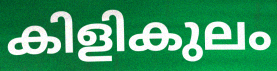
കിളികുലം